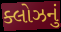
ક્લોઝનું